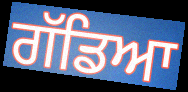
ਗੱਡਿਆ